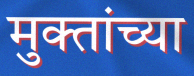
मुक्तांच्या